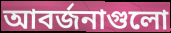
আবর্জনাগুলো